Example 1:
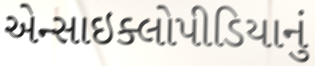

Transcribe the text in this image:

એન્સાઇક્લોપીડિયાનું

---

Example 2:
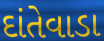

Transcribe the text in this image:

દાંતેવાડા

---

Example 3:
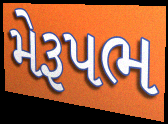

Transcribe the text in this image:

મેરૂપભ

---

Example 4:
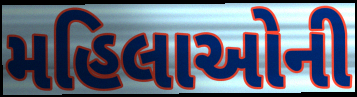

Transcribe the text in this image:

મહિલાઓની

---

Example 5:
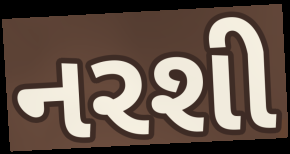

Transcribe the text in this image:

નરશી